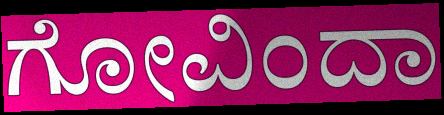
ಗೋವಿಂದಾ